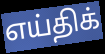
எய்திக்